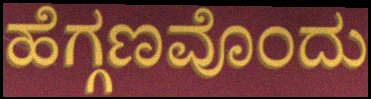
ಹೆಗ್ಗಣವೊಂದು